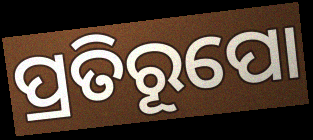
ପ୍ରତିରୂପୋ